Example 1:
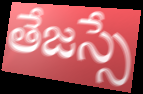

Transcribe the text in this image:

తేజస్సే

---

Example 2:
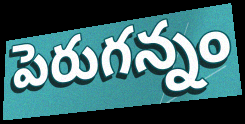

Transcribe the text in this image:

పెరుగన్నం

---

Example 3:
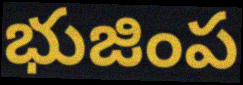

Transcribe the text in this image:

భుజింప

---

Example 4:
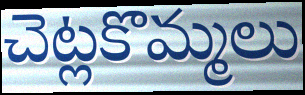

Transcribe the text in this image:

చెట్లకొమ్మలు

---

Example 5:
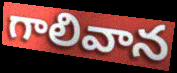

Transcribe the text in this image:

గాలివాన